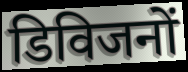
डिविजनों